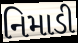
નિમાડી